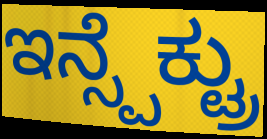
ಇನ್ಸ್ಪೆಕ್ಟ್ರು